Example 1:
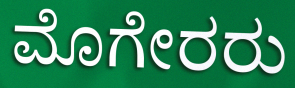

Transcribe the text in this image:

ಮೊಗೇರರು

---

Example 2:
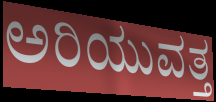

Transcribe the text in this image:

ಅರಿಯುವತ್ತ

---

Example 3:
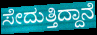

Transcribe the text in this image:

ಸೇದುತ್ತಿದ್ದಾನೆ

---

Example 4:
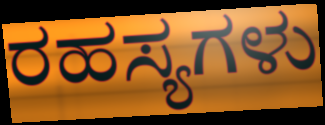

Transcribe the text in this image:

ರಹಸ್ಯಗಳು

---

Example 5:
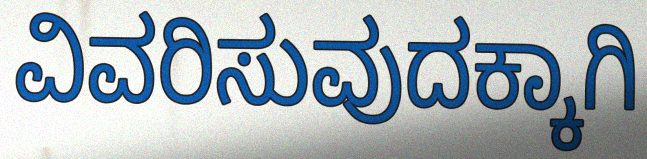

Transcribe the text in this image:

ವಿವರಿಸುವುದಕ್ಕಾಗಿ